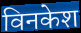
विनकेश